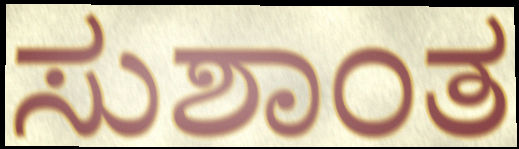
ಸುಶಾಂತ